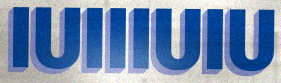
IUIIIUIU